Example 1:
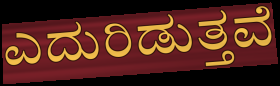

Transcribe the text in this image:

ಎದುರಿಡುತ್ತವೆ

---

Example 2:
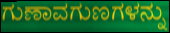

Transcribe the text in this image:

ಗುಣಾವಗುಣಗಳನ್ನು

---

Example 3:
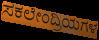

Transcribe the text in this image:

ಸಕಲೇಂದ್ರಿಯಗಳ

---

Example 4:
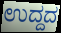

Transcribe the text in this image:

ಉದ್ದದ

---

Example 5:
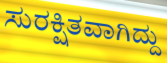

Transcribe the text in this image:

ಸುರಕ್ಷಿತವಾಗಿದ್ದು